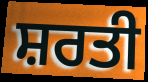
ਸ਼ਰਤੀ